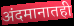
अंदमानातही